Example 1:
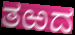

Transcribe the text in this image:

ತಱದ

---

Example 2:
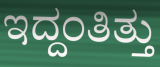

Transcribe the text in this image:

ಇದ್ದಂತಿತ್ತು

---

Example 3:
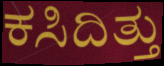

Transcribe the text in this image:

ಕಸಿದಿತ್ತು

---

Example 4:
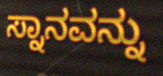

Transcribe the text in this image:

ಸ್ನಾನವನ್ನು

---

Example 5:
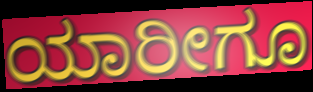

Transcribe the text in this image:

ಯಾರೀಗೂ